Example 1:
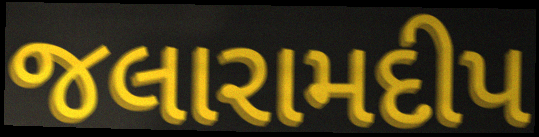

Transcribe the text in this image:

જલારામદીપ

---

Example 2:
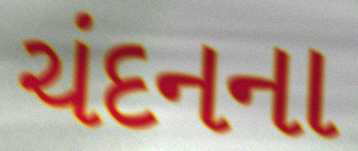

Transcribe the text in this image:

ચંદનના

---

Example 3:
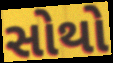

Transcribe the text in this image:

સોથો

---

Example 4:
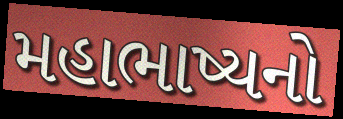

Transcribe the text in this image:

મહાભાષ્યનો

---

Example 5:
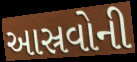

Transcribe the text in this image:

આસ્રવોની